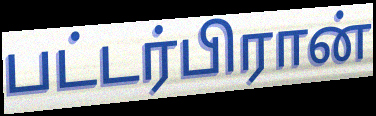
பட்டர்பிரான்